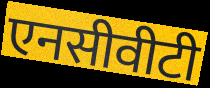
एनसीवीटी